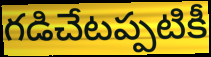
గడిచేటప్పటికీ